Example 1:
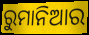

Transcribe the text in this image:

ରୁମାନିଆର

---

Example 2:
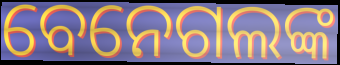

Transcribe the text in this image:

ବେନେଗଲଙ୍କ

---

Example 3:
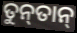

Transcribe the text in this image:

ତୁନ୍‍ତାନ୍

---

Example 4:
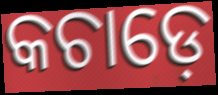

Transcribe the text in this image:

କଚାଡ଼େ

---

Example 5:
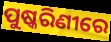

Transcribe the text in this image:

ପୁଷ୍କରିଣୀରେ